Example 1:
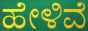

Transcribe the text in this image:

ಹೇಳಿವೆ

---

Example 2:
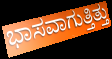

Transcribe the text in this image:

ಭಾಸವಾಗುತ್ತಿತ್ತು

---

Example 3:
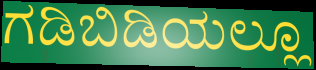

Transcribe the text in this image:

ಗಡಿಬಿಡಿಯಲ್ಲೂ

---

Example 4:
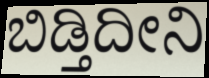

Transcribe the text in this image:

ಬಿಡ್ತಿದೀನಿ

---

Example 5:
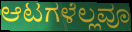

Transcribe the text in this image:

ಆಟಗಳೆಲ್ಲವೂ